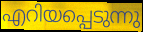
എറിയപ്പെടുന്നു